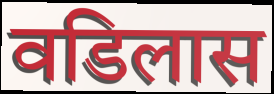
वडिलास